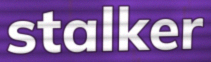
stalker